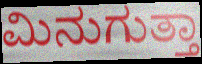
ಮಿನುಗುತ್ತಾ